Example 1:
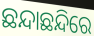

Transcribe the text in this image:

ଛନ୍ଦାଛନ୍ଦିରେ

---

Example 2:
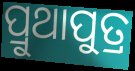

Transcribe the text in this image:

ପ୍ରୁଥାପୁତ୍ର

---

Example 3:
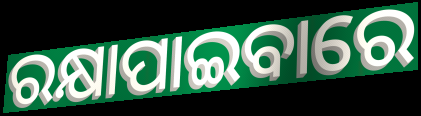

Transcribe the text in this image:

ରକ୍ଷାପାଇବାରେ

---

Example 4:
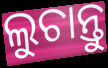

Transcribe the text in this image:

ଲୁଚାନ୍ତୁ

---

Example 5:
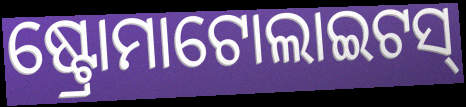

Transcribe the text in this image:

ଷ୍ଟ୍ରୋମାଟୋଲାଇଟସ୍